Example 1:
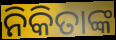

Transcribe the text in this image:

ନିକିତାଙ୍କ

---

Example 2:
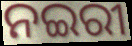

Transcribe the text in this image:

ନଇରୀ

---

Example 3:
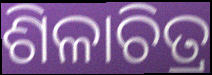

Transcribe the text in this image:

ଶିଳାଚିତ୍ର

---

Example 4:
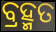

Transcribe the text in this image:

ବ୍ରହ୍ମତ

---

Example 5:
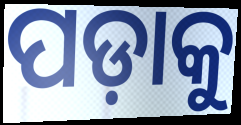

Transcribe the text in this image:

ପଡ଼ାକୁ